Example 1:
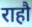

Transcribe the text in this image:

राहौ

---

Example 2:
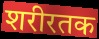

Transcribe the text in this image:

शरीरतक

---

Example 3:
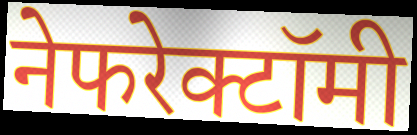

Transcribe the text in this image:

नेफरेक्टॉमी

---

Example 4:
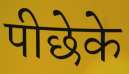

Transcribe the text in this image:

पीछेके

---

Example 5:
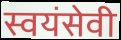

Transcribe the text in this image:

स्वयंसेवी